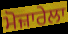
ਮੋਜ਼ਾਰੇਲਾ